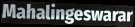
Mahalingeswarar